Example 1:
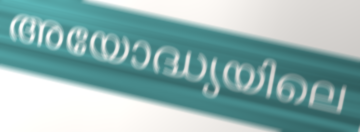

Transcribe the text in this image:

അയോദ്ധ്യയിലെ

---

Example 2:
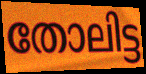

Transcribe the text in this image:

തോലിട്ട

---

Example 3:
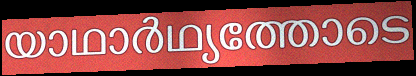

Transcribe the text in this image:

യാഥാർഥ്യത്തോടെ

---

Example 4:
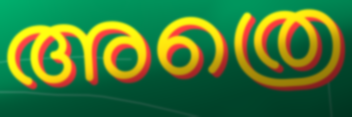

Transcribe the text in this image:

അത്രെ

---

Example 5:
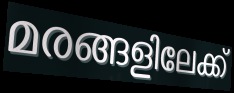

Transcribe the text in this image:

മരങ്ങളിലേക്ക്